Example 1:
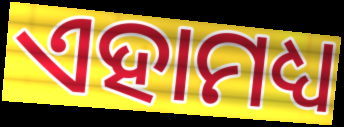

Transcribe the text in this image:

ଏହାମଧ୍ୟ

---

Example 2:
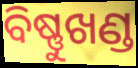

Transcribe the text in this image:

ବିଷ୍ଣୁଖଣ୍ଡ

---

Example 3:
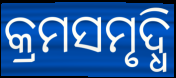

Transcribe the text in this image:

କ୍ରମସମୃଦ୍ଧି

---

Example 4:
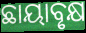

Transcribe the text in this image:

ଛାୟାବୃକ୍ଷ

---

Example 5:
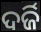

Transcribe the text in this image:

ଦର୍ଜି